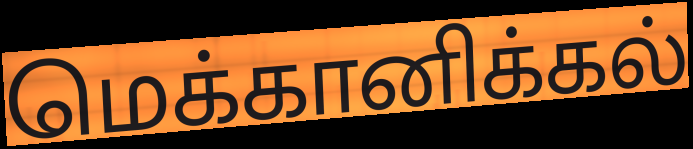
மெக்கானிக்கல்